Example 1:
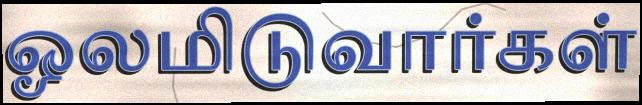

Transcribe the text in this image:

ஓலமிடுவார்கள்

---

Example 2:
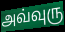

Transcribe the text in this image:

அவ்வுரு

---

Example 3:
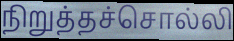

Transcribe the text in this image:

நிறுத்தச்சொல்லி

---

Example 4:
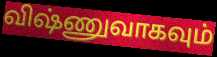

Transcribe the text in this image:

விஷ்ணுவாகவும்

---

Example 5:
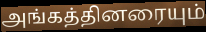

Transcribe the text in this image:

அங்கத்தினரையும்